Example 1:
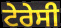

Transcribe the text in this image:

ਟੇਰੇਸੀ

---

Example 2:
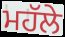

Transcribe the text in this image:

ਮਹੱਲੇ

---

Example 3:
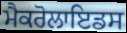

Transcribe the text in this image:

ਮੈਕਰੋਲਾਇਡਸ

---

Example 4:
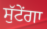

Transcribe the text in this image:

ਸੁੱਟੇਂਗਾ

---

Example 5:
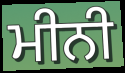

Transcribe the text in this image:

ਮੀਨੀ